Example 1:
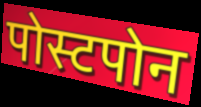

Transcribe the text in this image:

पोस्टपोन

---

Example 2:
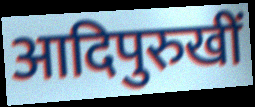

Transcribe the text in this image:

आदिपुरुखीं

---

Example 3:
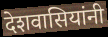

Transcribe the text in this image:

देशवासियांनी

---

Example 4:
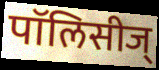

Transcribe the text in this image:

पॉलिसीज्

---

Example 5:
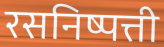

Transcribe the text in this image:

रसनिष्पत्ती